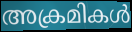
അക്രമികൾ